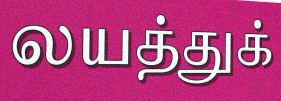
லயத்துக்